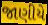
જાણીયે